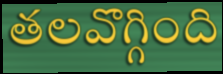
తలవొగ్గింది